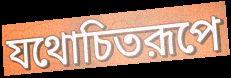
যথোচিতরূপে